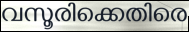
വസൂരിക്കെതിരെ